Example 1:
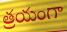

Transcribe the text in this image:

త్రయంగా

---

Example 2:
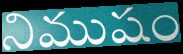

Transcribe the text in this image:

నిముషం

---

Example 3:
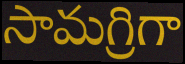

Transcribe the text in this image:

సామగ్రిగా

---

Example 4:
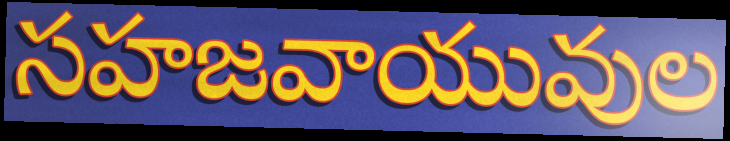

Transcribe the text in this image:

సహజవాయువుల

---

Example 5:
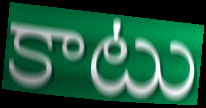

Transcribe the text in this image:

కాటు